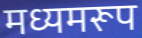
मध्यमरूप